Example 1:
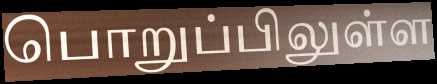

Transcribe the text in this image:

பொறுப்பிலுள்ள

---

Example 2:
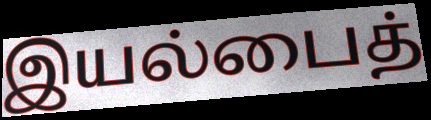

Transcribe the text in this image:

இயல்பைத்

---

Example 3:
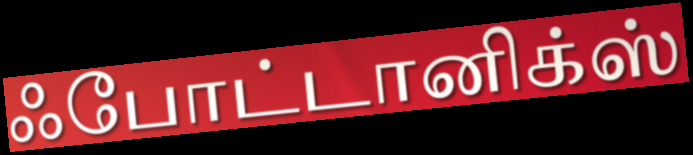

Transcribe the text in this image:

ஃபோட்டானிக்ஸ்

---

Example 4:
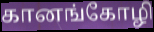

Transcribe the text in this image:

கானங்கோழி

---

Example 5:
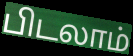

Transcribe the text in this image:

பிடலாம்